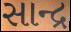
સાન્દ્ર